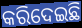
କରିଦେଇଛି